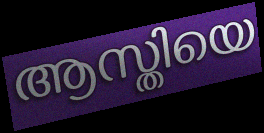
ആസ്തിയെ